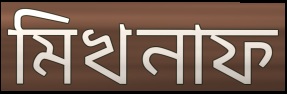
মিখনাফ